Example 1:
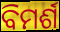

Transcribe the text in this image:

ବିମର୍ଶ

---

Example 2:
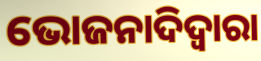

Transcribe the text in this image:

ଭୋଜନାଦିଦ୍ୱାରା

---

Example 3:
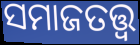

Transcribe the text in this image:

ସମାଜତତ୍ତ୍ୱ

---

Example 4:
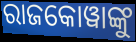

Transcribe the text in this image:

ରାଜକୋୱାଙ୍କୁ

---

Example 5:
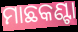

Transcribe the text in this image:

ମାଛକଣ୍ଟା